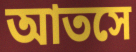
আতসে